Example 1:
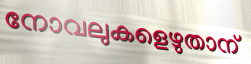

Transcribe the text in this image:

നോവലുകളെഴുതാന്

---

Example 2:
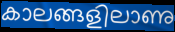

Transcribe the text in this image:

കാലങ്ങളിലാണു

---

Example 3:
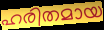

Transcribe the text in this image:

ഹരിതമായ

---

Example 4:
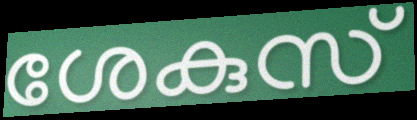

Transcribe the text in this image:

ശേകുസ്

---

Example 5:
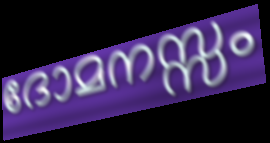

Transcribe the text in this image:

ദോമനസ്സം